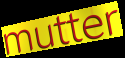
mutter